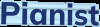
Pianist